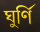
ঘুর্ণি